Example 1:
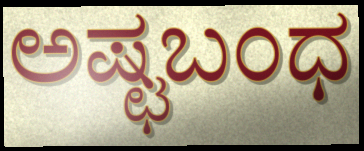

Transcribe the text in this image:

ಅಷ್ಟಬಂಧ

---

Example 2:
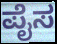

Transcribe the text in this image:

ಪೈಸ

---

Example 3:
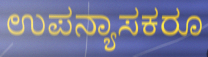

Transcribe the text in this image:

ಉಪನ್ಯಾಸಕರೂ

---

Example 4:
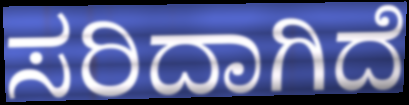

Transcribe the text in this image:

ಸರಿದಾಗಿದೆ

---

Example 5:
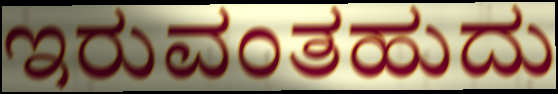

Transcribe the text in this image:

ಇರುವಂತಹುದು